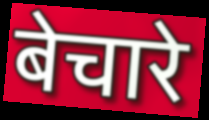
बेचारे